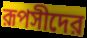
রূপসীদের